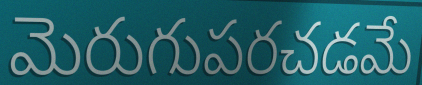
మెరుగుపరచడమే